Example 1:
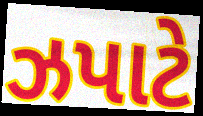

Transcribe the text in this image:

ઝપાટે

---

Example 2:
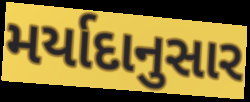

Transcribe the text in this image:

મર્યાદાનુસાર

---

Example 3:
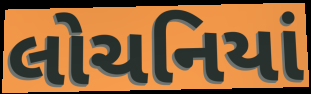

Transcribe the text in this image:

લોચનિયાં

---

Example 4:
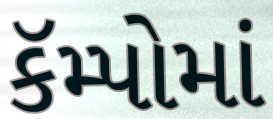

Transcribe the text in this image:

કૅમ્પોમાં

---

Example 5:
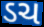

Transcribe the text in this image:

ડચ